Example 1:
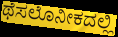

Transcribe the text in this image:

ಥೆಸಲೊನೀಕದಲ್ಲಿ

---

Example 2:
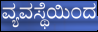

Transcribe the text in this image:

ವ್ಯವಸ್ಥೆಯಿಂದ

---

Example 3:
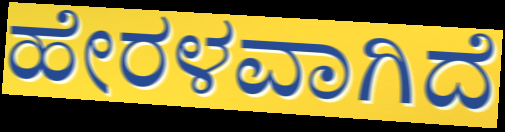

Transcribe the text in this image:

ಹೇರಳವಾಗಿದೆ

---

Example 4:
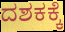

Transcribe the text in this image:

ದಶಕಕ್ಕೆ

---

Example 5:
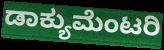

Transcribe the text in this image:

ಡಾಕ್ಯುಮೆಂಟರಿ